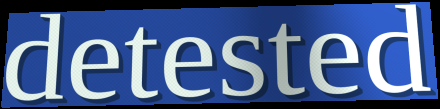
detested